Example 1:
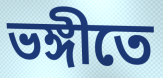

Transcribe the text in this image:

ভঙ্গীতে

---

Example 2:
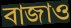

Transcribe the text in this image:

বাজাও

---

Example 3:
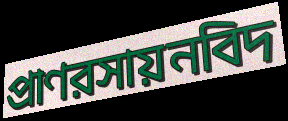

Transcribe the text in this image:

প্রাণরসায়নবিদ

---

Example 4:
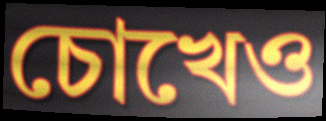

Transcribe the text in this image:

চোখেও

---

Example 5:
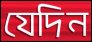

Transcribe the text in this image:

যেদিন